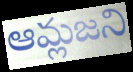
ఆమ్లజని